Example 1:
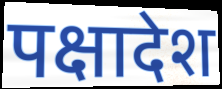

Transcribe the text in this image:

पक्षादेश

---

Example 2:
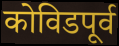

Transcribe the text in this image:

कोविडपूर्व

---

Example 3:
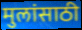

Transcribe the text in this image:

मुलांसाठी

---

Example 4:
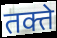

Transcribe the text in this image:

तक्ते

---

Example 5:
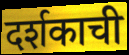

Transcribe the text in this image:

दर्शकाची